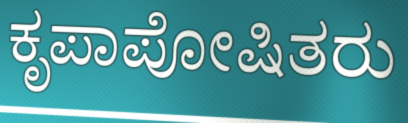
ಕೃಪಾಪೋಷಿತರು